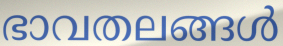
ഭാവതലങ്ങൾ